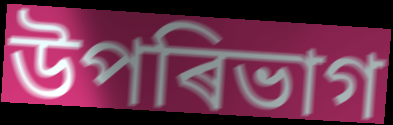
উপৰিভাগ